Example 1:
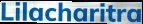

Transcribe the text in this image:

Lilacharitra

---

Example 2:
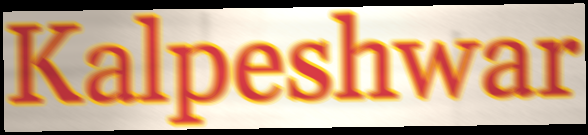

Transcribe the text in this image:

Kalpeshwar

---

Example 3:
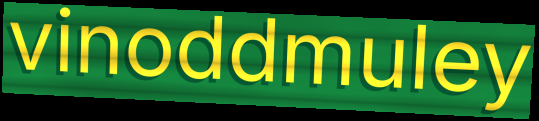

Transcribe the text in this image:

vinoddmuley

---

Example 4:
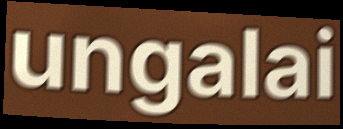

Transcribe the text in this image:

ungalai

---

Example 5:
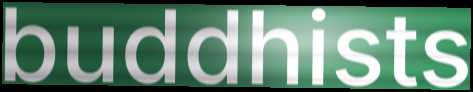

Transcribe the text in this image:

buddhists